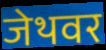
जेथवर